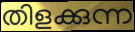
തിളക്കുന്ന